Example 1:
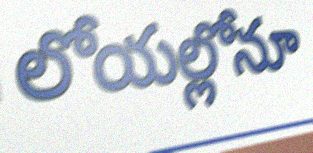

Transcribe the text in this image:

లోయల్లోనూ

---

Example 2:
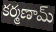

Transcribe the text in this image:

కర్మణామ్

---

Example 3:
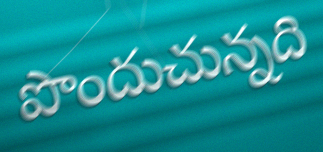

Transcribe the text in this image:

పొందుచున్నది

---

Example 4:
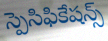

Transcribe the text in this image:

స్పెసిఫికేషన్స్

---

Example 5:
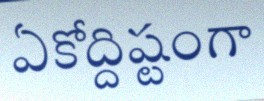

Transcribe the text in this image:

ఏకోద్దిష్టంగా